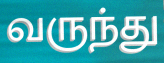
வருந்து